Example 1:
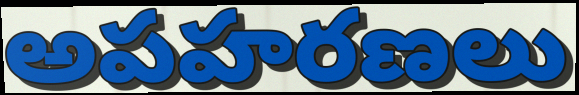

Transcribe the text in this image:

అపహరణలు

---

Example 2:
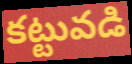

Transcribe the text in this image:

కట్టువడి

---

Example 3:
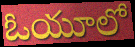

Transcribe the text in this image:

ఓయూలో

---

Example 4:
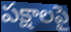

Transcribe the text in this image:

పక్షాలపై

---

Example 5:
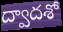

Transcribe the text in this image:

ద్వాదశో